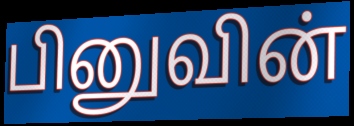
பினுவின்